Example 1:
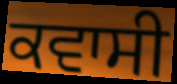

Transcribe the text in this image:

ਕਵਾਸੀ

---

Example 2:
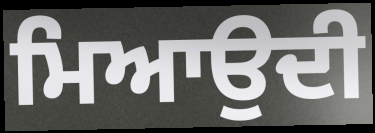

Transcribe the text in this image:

ਮਿਆਉਦੀ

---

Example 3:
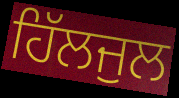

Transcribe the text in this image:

ਹਿੱਲਜੁਲ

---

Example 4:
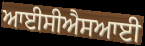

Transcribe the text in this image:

ਆਈਸੀਐਸਆਈ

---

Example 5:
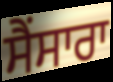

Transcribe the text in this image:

ਸੈਂਸਾਰਾ